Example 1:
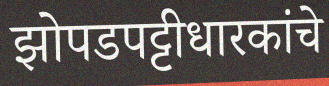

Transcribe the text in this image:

झोपडपट्टीधारकांचे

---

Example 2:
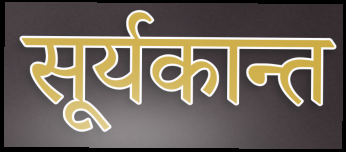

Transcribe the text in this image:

सूर्यकान्त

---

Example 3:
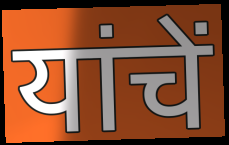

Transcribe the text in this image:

यांचें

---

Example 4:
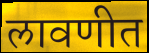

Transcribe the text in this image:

लावणीत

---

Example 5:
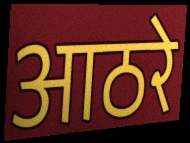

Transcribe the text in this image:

आठरे